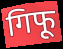
गिफू